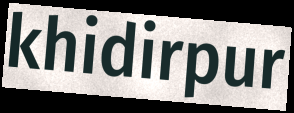
khidirpur